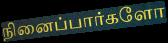
நினைப்பார்களோ